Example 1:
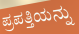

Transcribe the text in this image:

ಪ್ರಪತ್ತಿಯನ್ನು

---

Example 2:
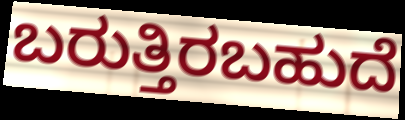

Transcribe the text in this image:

ಬರುತ್ತಿರಬಹುದೆ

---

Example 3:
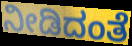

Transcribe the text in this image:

ನೀಡಿದಂತೆ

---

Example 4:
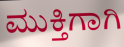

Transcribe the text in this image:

ಮುಕ್ತಿಗಾಗಿ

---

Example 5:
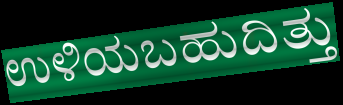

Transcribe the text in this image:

ಉಳಿಯಬಹುದಿತ್ತು